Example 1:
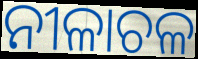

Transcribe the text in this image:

ନୀଳାଚଳ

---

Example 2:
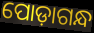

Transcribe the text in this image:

ପୋଡ଼ାଗନ୍ଧ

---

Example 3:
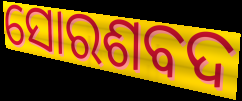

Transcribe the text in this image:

ସୋରଶବଦ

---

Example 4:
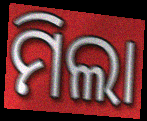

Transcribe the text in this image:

ମିଲା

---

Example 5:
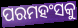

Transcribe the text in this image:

ପରମହଂସକୁ